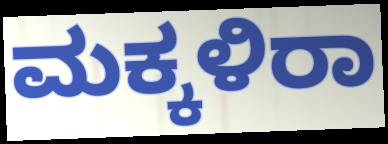
ಮಕ್ಕಳಿರಾ